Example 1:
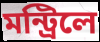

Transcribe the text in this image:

মন্ট্রিলে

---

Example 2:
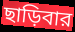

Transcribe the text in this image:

ছাড়িবার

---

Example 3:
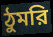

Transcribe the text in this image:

ঠুমরি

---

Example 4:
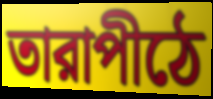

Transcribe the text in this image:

তারাপীঠে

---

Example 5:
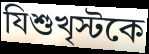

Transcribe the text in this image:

যিশুখৃস্টকে